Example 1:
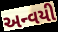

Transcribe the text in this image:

અન્વયી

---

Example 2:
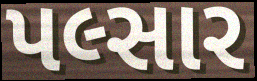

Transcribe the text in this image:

પલ્સાર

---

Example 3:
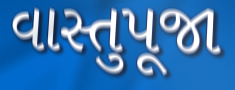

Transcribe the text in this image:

વાસ્તુપૂજા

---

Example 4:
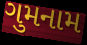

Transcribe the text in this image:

ગુમનામ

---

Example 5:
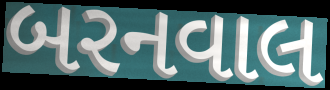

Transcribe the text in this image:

બરનવાલ